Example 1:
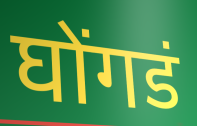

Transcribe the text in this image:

घोंगडं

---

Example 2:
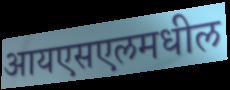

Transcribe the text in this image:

आयएसएलमधील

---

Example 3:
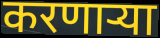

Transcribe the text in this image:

करणाऱ्या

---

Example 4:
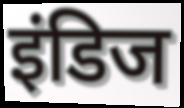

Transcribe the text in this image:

इंडिज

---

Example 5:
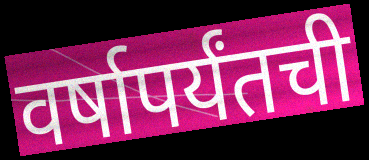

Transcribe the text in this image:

वर्षापर्यंतची